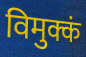
विमुक्कं